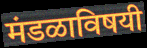
मंडळाविषयी